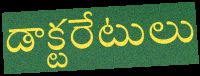
డాక్టరేటులు